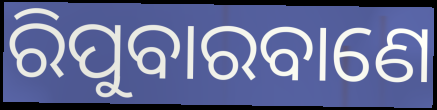
ରିପୁବାରବାଣେ